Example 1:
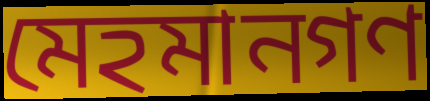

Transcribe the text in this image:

মেহমানগণ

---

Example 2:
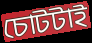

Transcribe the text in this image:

চোটটাই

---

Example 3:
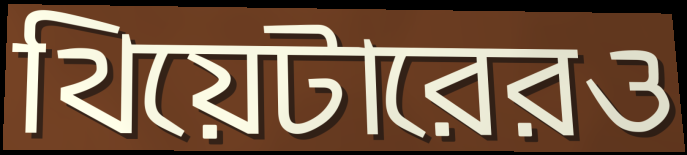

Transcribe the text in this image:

থিয়েটারেরও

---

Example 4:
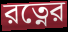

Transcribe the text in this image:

রত্নের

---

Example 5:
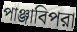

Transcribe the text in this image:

পাঞ্জাবিপরা